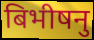
बिभीषनु